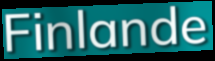
Finlande